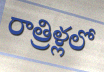
రాత్రిళ్లలో